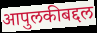
आपुलकीबद्दल